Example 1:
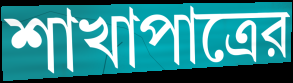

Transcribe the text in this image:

শাখাপাত্রের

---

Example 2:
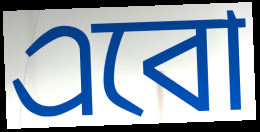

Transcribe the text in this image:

এবো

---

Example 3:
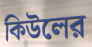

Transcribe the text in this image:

কিউলের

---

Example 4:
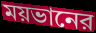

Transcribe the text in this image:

ময়ভানের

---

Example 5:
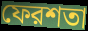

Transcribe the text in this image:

ফেরশতা